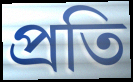
প্ৰতি